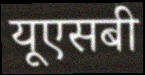
यूएसबी